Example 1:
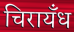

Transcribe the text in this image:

चिरायँध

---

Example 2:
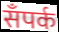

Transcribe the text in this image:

सँपर्क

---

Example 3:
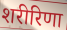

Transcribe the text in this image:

शरीरिणा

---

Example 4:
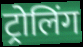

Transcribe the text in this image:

ट्रोलिंग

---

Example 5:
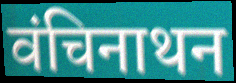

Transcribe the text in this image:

वंचिनाथन